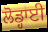
ਲੋਡ੍ਹਾਈ